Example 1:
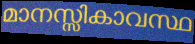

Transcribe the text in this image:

മാനസ്സികാവസ്ഥ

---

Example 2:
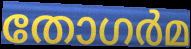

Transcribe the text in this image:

തോഗർമ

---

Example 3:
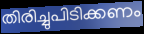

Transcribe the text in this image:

തിരിച്ചുപിടിക്കണം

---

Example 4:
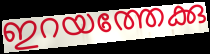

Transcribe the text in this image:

ഇറയത്തേക്കു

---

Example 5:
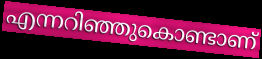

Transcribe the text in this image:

എന്നറിഞ്ഞുകൊണ്ടാണ്